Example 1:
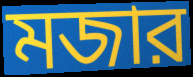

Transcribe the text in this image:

মজার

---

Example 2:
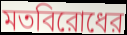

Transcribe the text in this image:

মতবিরোধের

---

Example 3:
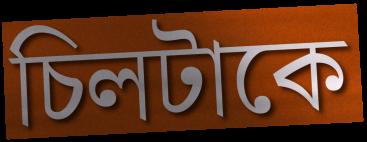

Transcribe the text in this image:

চিলটাকে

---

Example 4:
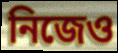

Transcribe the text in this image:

নিজেও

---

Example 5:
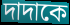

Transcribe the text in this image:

দাদাকে